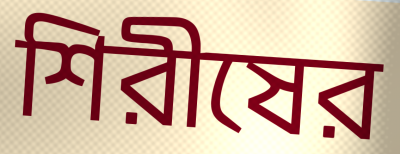
শিরীষের